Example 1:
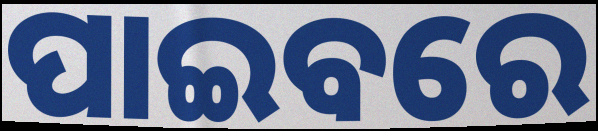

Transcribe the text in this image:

ପାଇବରେ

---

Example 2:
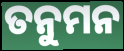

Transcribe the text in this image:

ତନୁମନ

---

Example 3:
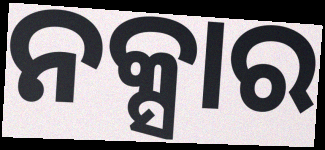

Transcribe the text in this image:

ନକ୍ସାର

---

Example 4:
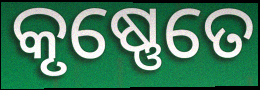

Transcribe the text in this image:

କୃଷ୍ଣେତେ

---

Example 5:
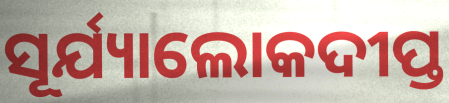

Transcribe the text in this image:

ସୂର୍ଯ୍ୟାଲୋକଦୀପ୍ତ